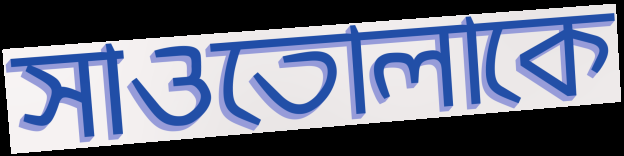
সাওতোলাকে